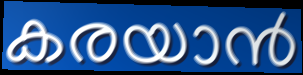
കരയാൻ